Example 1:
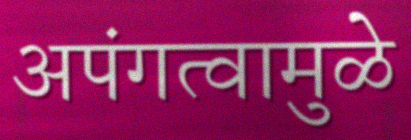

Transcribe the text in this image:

अपंगत्वामुळे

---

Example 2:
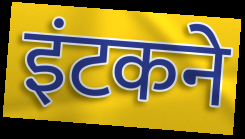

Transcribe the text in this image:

इंटकने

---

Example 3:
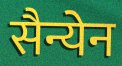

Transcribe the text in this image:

सैन्येन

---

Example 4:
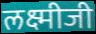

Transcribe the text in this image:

लक्ष्मीजी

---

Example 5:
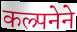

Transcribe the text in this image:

कल्पनेने